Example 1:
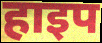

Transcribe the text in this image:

हाइप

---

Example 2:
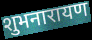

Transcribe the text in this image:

शुभनारायण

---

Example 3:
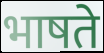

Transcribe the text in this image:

भाषते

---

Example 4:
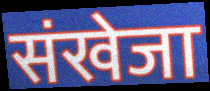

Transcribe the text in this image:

संखेजा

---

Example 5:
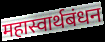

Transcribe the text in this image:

महास्वार्थबंधन